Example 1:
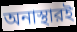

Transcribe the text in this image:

অনাস্থারই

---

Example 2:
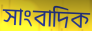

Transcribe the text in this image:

সাংবাদিক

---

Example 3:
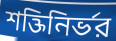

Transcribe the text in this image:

শক্তিনির্ভর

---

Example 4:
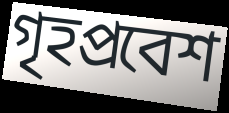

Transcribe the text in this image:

গৃহপ্রবেশ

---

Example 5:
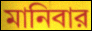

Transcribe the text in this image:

মানিবার